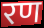
रण